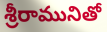
శ్రీరామునితో